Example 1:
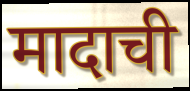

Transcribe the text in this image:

मादाची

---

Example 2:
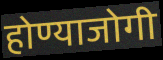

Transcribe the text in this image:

होण्याजोगी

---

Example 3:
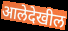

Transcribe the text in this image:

आलेदेखील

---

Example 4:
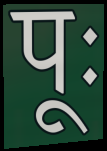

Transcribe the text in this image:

पूः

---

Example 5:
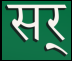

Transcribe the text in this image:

सर्